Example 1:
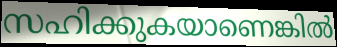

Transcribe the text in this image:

സഹിക്കുകയാണെങ്കിൽ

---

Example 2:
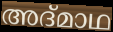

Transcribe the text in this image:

അദ്മാഥ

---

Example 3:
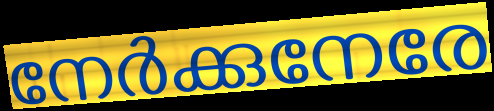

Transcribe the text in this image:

നേർക്കുനേരേ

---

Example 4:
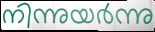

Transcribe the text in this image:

നിന്നുയർന്നു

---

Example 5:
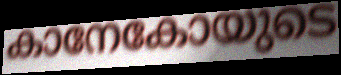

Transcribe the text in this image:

കാനേകോയുടെ